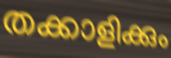
തക്കാളിക്കും